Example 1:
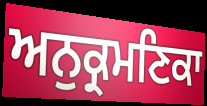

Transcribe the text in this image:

ਅਨੁਕ੍ਰਮਣਿਕਾ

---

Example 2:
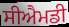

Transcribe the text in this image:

ਸੀਐਮਡੀ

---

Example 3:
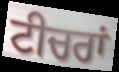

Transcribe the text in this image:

ਟੀਚਰਾਂ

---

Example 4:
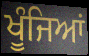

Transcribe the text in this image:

ਖੂੰਜਿਆਂ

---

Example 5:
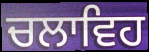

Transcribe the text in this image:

ਚਲਾਵਿਹ